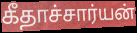
கீதாச்சார்யன்